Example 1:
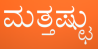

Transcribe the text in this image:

ಮತ್ತಷ್ಟು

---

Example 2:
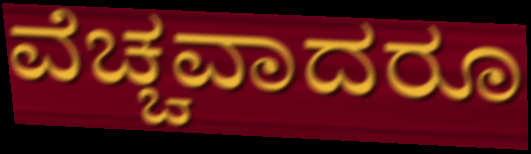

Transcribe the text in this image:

ವೆಚ್ಚವಾದರೂ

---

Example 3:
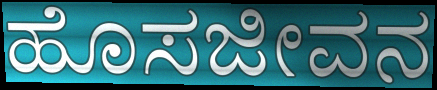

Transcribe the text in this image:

ಹೊಸಜೀವನ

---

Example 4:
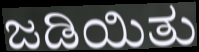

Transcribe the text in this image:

ಜಡಿಯಿತು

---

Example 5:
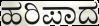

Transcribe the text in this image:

ಹರಿಪಾದ